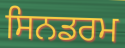
ਸਿਨਡਰਮ